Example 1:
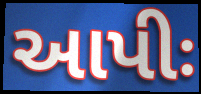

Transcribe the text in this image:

આપીઃ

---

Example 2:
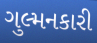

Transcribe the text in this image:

ગુલ્મનકારી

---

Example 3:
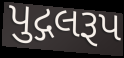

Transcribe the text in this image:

પુદ્ગલરૂપ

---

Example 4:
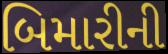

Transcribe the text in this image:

બિમારીની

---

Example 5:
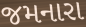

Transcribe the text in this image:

જમનારા